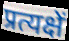
प्रत्यक्षें